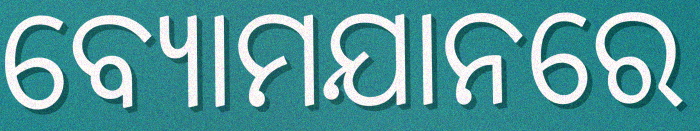
ବ୍ୟୋମଯାନରେ